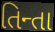
તિન્તા